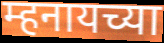
म्हनायच्या